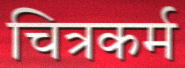
चित्रकर्म